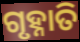
ଗୃହ୍ନାତି